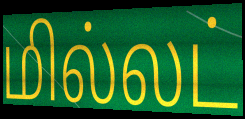
மில்லட்